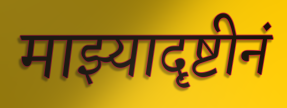
माझ्यादृष्टीनं